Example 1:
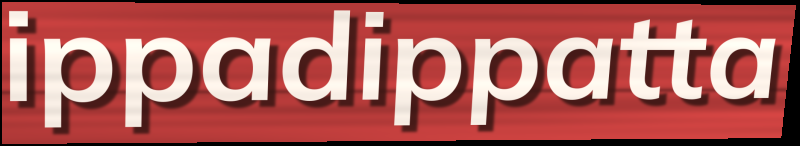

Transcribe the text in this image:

ippadippatta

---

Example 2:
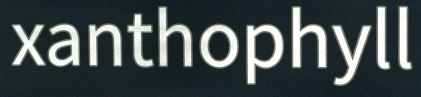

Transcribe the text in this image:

xanthophyll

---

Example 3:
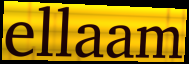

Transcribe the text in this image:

ellaam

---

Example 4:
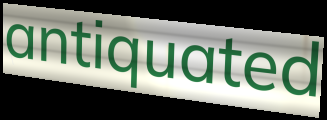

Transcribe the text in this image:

antiquated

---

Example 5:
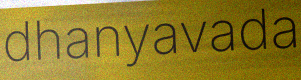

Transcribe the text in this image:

dhanyavada